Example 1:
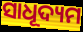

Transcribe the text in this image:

ସାଧୂଦ୍ୟମ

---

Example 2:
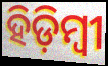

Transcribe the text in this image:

ହିଡ଼ିମ୍ବୀ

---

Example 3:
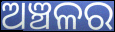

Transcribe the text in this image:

ଅଞ୍ଚଳର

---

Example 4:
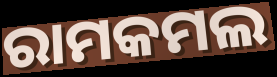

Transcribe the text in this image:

ରାମକମଲ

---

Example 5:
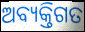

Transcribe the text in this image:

ଅବ୍ୟକ୍ତିଗତ